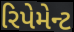
રિપેમેન્ટ